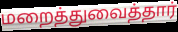
மறைத்துவைத்தார்